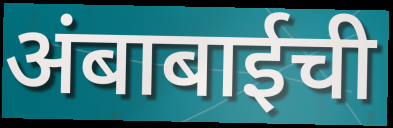
अंबाबाईची